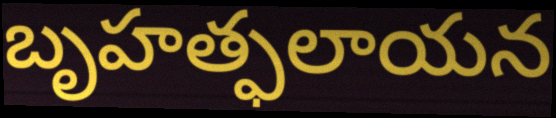
బృహత్ఫలాయన